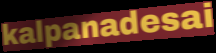
kalpanadesai